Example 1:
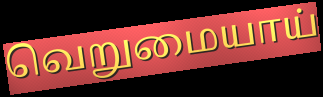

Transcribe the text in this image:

வெறுமையாய்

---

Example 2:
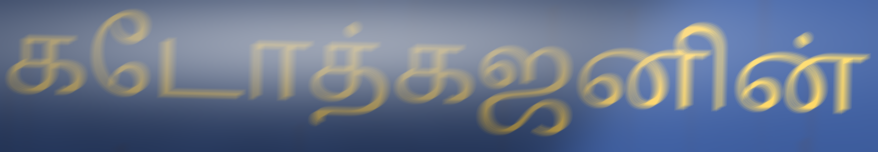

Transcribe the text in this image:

கடோத்கஜனின்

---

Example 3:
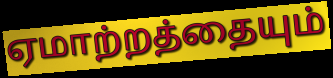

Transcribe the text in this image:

ஏமாற்றத்தையும்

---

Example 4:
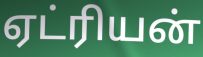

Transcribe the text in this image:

ஏட்ரியன்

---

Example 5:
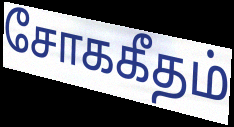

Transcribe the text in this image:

சோககீதம்